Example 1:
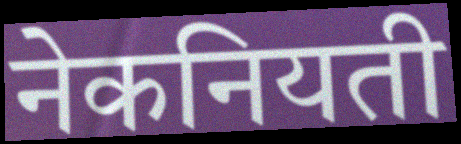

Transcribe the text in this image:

नेकनियती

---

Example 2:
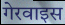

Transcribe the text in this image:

गेरवाइस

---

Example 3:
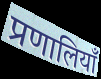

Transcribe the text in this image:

प्रणालियाँ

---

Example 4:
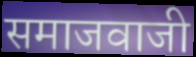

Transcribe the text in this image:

समाजवाजी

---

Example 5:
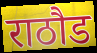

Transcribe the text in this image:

राठौड